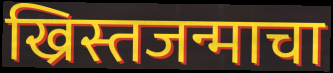
ख्रिस्तजन्माचा